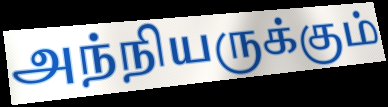
அந்நியருக்கும்